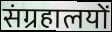
संग्रहालयों